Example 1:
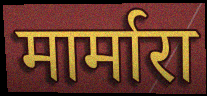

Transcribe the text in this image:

मार्मारा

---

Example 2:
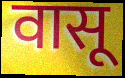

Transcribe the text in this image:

वासू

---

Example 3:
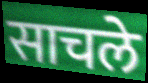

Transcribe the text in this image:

साचले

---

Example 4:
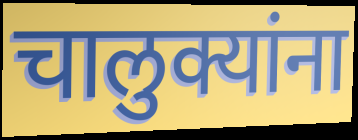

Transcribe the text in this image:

चालुक्यांना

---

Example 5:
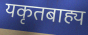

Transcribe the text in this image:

यकृतबाह्य